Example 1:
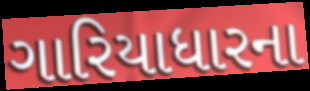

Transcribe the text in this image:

ગારિયાધારના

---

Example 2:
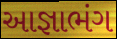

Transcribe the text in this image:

આજ્ઞાભંગ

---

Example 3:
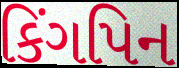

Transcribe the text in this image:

કિંગપિન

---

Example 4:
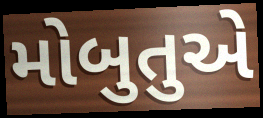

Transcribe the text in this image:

મોબુતુએ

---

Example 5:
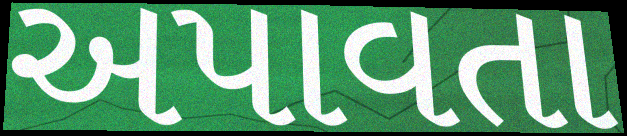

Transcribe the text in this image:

અપાવતા